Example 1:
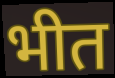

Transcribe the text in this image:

भीत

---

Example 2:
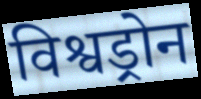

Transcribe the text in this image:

विश्वड्रोन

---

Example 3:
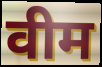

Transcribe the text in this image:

वीम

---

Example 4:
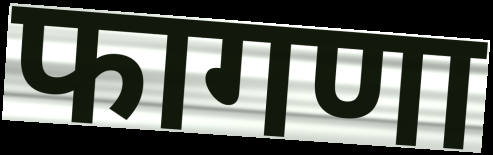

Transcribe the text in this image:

फागणा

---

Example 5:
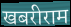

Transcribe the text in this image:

खबरीराम